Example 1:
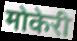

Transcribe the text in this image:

मोकेरी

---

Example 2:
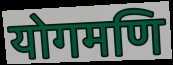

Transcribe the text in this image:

योगमणि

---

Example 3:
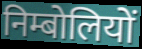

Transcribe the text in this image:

निम्बोलियों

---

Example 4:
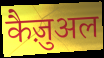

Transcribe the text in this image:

कैज़ुअल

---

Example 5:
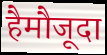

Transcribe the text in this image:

हैमौजूदा